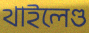
থাইলেণ্ড